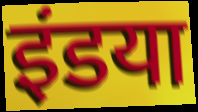
इंडया